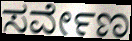
ಸರ್ವೇಣ